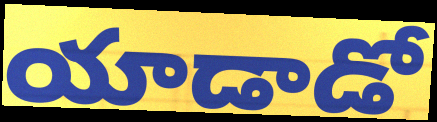
యాడాడో